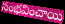
సంభవించాయి